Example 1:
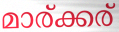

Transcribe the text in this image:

മാര്ക്കര്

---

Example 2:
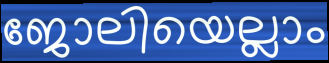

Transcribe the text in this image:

ജോലിയെല്ലാം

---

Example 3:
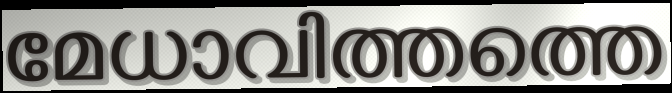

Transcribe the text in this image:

മേധാവിത്തത്തെ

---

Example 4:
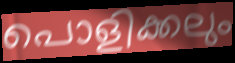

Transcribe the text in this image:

പൊളിക്കലും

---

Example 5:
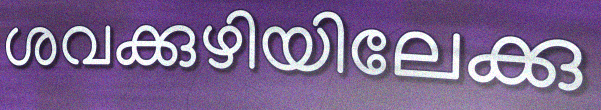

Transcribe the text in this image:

ശവക്കുഴിയിലേക്കു